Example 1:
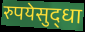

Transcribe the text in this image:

रुपयेसुद्धा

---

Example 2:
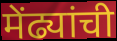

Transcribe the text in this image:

मेंढ्यांची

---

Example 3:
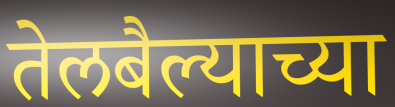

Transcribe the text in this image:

तेलबैल्याच्या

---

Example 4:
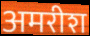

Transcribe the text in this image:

अमरीश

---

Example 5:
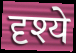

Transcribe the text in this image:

दृश्‍ये